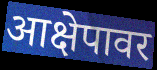
आक्षेपावर